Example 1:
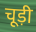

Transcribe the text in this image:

चूड़ी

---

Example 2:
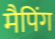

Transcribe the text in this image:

मैपिंग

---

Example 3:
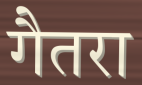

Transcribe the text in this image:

गैतरा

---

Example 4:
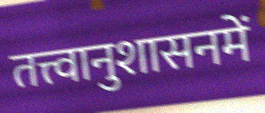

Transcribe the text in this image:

तत्त्वानुशासनमें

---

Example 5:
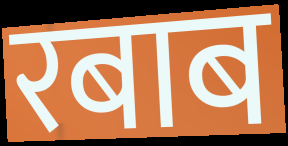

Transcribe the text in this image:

रबाब